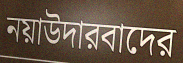
নয়াউদারবাদের